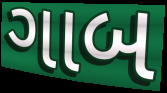
ગાબ